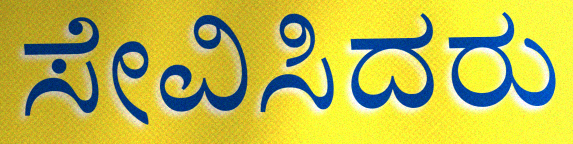
ಸೇವಿಸಿದರು